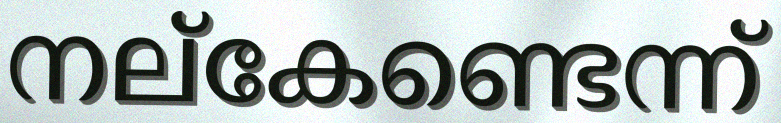
നല്കേണ്ടെന്ന്